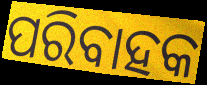
ପରିବାହକ